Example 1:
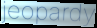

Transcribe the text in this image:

jeopardy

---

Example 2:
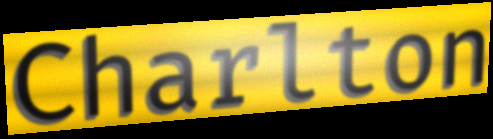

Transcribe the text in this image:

Charlton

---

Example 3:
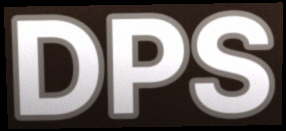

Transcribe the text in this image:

DPS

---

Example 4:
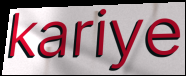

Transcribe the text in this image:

kariye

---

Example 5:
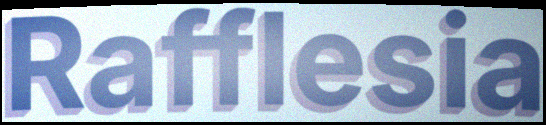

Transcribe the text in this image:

Rafflesia